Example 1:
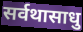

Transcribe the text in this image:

सर्वथासाधु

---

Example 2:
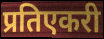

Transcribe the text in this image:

प्रतिएकरी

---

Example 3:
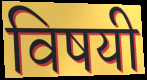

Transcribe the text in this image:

विषयी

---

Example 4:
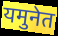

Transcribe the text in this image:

यमुनेत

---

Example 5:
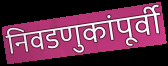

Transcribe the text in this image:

निवडणुकांपूर्वी